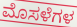
ಮೊಸಳೆಗಳ